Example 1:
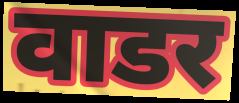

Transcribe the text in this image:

वाडर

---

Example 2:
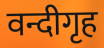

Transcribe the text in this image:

वन्दीगृह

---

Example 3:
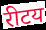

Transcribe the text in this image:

रीटय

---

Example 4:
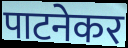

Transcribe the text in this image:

पाटनेकर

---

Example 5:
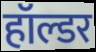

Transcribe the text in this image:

हॉल्डर